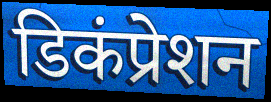
डिकंप्रेशन